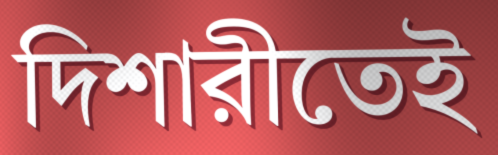
দিশারীতেই